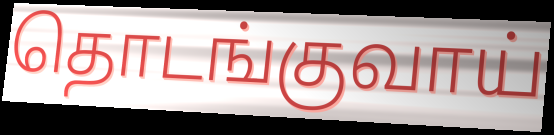
தொடங்குவாய்